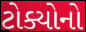
ટોક્યોનો